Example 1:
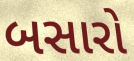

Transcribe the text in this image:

બસારો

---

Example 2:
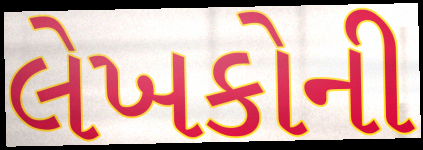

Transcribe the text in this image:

લેખકોની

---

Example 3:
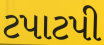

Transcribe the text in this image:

ટપાટપી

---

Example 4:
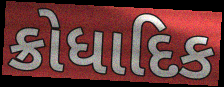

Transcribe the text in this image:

ક્રોધાદિક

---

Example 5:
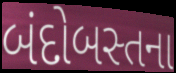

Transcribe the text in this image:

બંદોબસ્તના